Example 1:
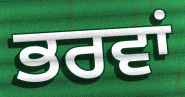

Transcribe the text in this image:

ਭਰਵਾਂ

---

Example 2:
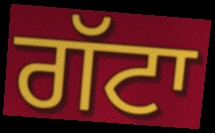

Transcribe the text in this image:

ਗੱਟਾ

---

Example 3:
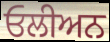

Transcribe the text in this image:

ਓਲੀਅਨ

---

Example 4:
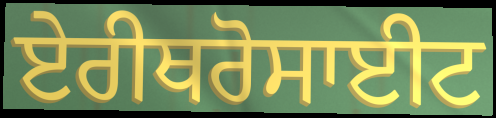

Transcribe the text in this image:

ਏਰੀਥਰੋਸਾਈਟ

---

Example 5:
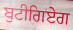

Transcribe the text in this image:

ਬੁਟੀਗਿਏਗ